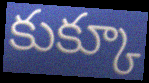
కుక్కూ